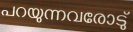
പറയുന്നവരോടു്